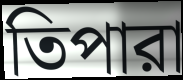
তিপারা